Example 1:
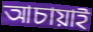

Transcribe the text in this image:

আচায়াই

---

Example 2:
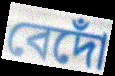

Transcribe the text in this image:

বেদোঁ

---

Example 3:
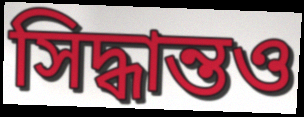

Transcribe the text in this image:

সিদ্ধান্তও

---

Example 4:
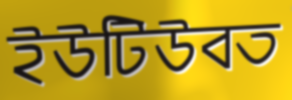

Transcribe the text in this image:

ইউটিউবত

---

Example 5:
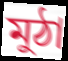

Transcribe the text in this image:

মুঠা